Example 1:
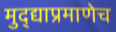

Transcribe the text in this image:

मुद्द्याप्रमाणेच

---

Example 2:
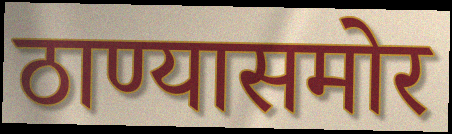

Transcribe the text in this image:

ठाण्यासमोर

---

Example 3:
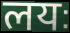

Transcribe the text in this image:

लयः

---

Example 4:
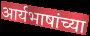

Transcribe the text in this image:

आर्यभाषांच्या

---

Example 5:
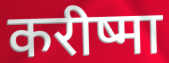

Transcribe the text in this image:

करीष्मा